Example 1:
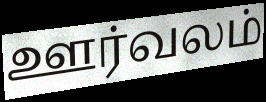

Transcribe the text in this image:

ஊர்வலம்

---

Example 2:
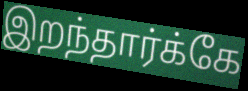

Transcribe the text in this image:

இறந்தார்க்கே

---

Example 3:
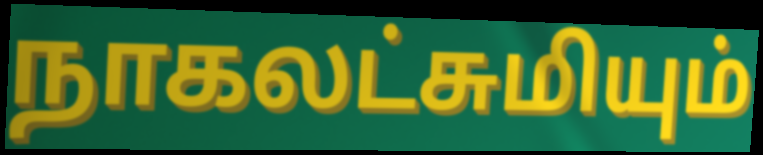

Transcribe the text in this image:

நாகலட்சுமியும்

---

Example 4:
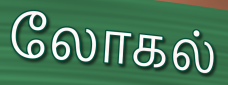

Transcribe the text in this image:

லோகல்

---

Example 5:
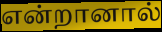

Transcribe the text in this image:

என்றானால்